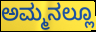
ಅಮ್ಮನಲ್ಲೂ